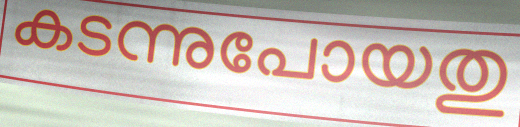
കടന്നുപോയതു